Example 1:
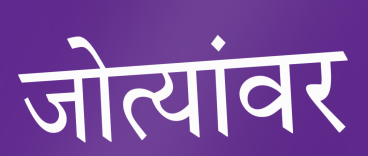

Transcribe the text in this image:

जोत्यांवर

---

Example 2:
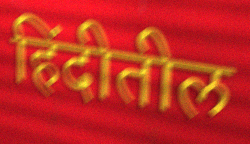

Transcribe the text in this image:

हिंदीतील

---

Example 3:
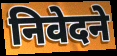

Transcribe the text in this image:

निवेदने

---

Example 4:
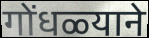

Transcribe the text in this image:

गोंधळ्याने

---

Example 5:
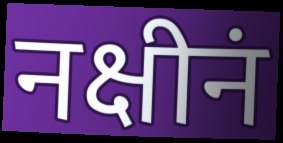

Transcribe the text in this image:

नक्षीनं